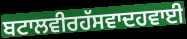
ਬਟਾਲਵੀਰਹੱਸਵਾਦਹਵਾਈ